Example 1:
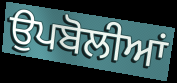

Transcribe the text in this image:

ਉਪਬੋਲੀਆਂ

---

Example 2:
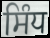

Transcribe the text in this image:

ਸਿੰਧ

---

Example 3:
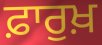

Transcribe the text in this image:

ਫ਼ਾਰੁਖ਼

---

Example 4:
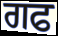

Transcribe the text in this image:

ਗਫ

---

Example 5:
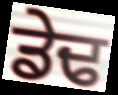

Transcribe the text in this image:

ਡੇਢ